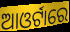
ଆଓର୍ଟାରେ